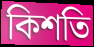
কিশতি